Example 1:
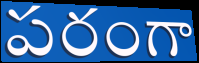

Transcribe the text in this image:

పరంగా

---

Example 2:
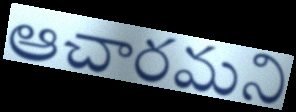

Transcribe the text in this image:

ఆచారమని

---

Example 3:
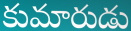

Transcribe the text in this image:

కుమారుడు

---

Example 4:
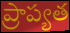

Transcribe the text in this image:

ప్రాప్యత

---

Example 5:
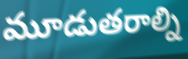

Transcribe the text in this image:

మూడుతరాల్ని